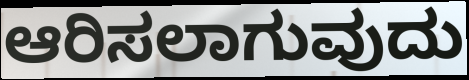
ಆರಿಸಲಾಗುವುದು